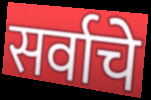
सर्वाचे